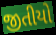
જીતીયો